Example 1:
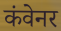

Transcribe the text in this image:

कंवेनर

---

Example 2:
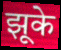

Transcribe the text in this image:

झूके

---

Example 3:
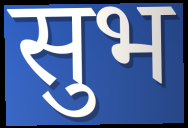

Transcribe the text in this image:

सुभ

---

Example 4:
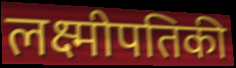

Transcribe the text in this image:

लक्ष्मीपतिकी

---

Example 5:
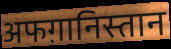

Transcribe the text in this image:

अफग़ानिस्तान